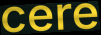
cere